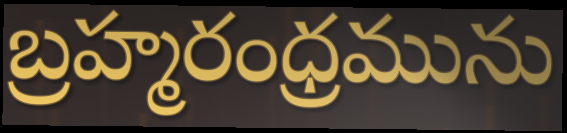
బ్రహ్మరంధ్రమును